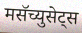
मसॅच्युसेट्स